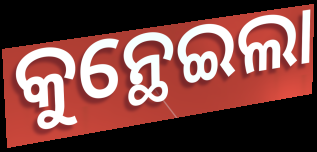
କୁନ୍ଥେଇଲା